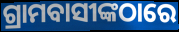
ଗ୍ରାମବାସୀଙ୍କଠାରେ